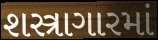
શસ્ત્રાગારમાં